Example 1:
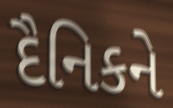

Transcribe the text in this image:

દૈનિકને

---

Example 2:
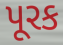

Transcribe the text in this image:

પૂરક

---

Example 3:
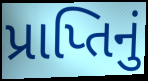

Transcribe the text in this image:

પ્રાપ્તિનું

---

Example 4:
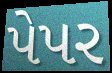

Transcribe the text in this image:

પેપર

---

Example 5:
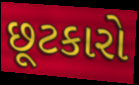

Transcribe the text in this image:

છૂટકારો